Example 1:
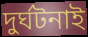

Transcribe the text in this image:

দুর্ঘটনাই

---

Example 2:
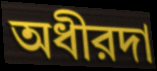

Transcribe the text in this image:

অধীরদা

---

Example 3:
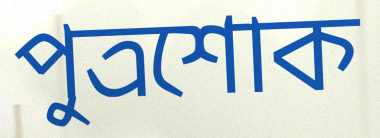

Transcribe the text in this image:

পুত্রশোক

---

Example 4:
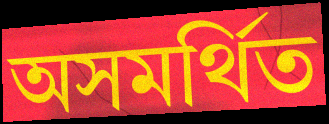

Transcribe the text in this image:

অসমর্থিত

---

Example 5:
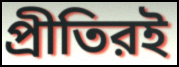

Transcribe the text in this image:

প্রীতিরই